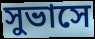
সুভাসে